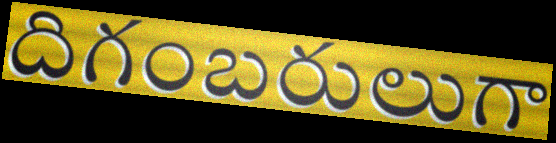
దిగంబరులుగా